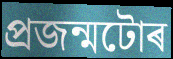
প্ৰজন্মটোৰ